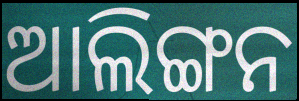
ଆଲିଙ୍ଗନ